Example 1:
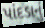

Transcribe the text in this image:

પાંદડાનું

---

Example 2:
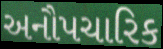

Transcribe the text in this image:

અનૌપચારિક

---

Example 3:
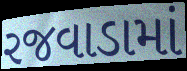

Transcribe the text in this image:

રજવાડામાં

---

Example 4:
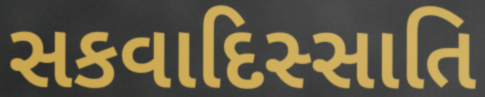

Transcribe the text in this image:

સકવાદિસ્સાતિ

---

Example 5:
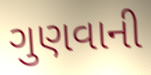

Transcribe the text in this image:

ગુણવાની